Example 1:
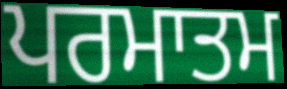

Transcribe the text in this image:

ਪਰਮਾਤਮ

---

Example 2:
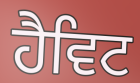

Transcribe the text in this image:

ਹੈਵਿਟ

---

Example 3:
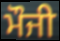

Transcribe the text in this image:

ਮੌਜੀ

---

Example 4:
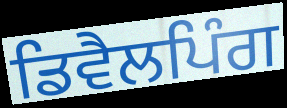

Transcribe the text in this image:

ਡਿਵੈਲਪਿੰਗ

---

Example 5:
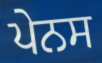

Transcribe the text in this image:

ਪੇਨਸ